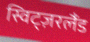
स्विट्ज़रलैंड